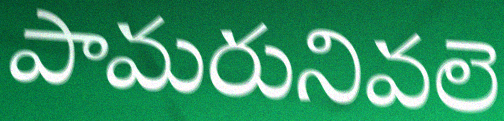
పామరునివలె